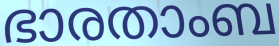
ഭാരതാംബ